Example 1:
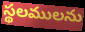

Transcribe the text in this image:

స్థలములను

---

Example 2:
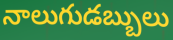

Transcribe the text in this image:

నాలుగుడబ్బులు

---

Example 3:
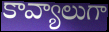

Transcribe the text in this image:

కావ్యాలుగా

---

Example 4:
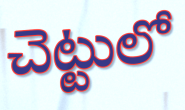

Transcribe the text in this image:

చెట్టులో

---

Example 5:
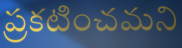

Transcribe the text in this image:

ప్రకటించమని